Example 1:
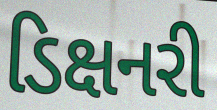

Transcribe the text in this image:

ડિક્ષનરી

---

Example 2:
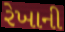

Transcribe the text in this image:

રેખાની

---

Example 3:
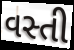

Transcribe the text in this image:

વસ્તી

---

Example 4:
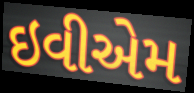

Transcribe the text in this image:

ઇવીએમ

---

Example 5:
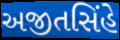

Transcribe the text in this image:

અજીતસિંહે